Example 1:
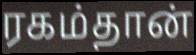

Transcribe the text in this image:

ரகம்தான்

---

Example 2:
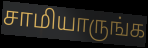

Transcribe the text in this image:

சாமியாருங்க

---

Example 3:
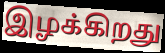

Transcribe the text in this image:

இழக்கிறது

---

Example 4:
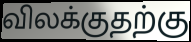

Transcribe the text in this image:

விலக்குதற்கு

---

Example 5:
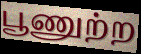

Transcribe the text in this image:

பூணுற்ற